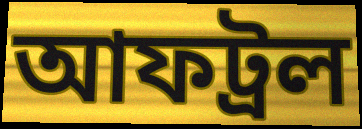
আফট্রল